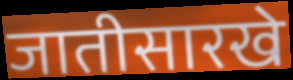
जातीसारखे